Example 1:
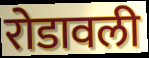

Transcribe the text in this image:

रोडावली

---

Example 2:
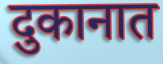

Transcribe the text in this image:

दुकानात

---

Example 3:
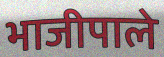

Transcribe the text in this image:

भाजीपाले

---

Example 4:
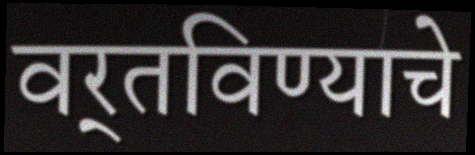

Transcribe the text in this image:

वर्तविण्याचे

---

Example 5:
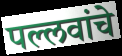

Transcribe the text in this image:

पल्लवांचे